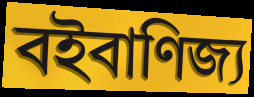
বইবাণিজ্য